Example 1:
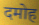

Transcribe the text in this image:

दमोह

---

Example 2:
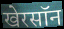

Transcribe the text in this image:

खेरसॉन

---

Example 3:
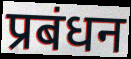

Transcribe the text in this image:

प्रबंधन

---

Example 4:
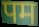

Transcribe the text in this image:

पम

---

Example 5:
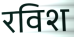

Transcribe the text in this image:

रविश